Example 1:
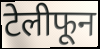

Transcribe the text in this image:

टेलीफून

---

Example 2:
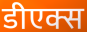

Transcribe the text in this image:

डीएक्स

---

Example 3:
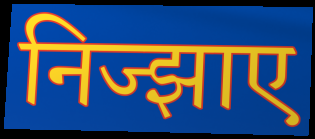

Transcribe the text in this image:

निज्झाए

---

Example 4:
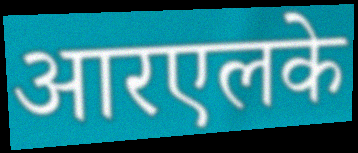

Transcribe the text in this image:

आरएलके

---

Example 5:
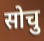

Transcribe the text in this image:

सोचु